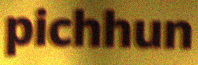
pichhun